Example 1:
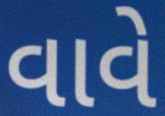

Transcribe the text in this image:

વાવે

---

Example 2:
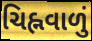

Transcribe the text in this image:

ચિહ્નવાળું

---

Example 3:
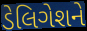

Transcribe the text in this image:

ડેલિગેશને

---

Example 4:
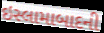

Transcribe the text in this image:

ઇસ્લામાબાદની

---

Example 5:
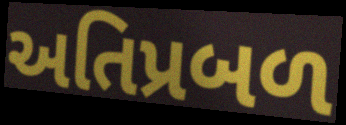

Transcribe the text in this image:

અતિપ્રબળ